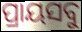
ପ୍ରାୟସବୁ